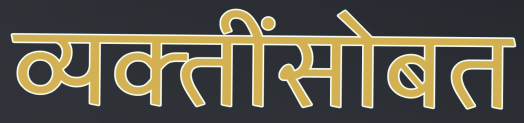
व्यक्‍तींसोबत